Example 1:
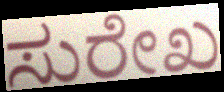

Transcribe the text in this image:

ಸುರೇಖ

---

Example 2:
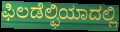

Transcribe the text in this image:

ಫಿಲಡೆಲ್ಫಿಯಾದಲ್ಲಿ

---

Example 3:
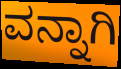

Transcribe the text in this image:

ವನ್ನಾಗಿ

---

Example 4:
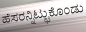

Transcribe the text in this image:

ಹೆಸರನ್ನಿಟ್ಟುಕೊಂಡು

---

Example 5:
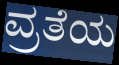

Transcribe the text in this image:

ವ್ರತೆಯ